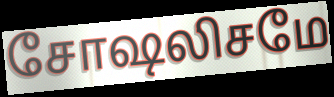
சோஷலிசமே